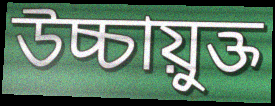
উচ্চায়ুক্ত